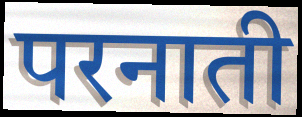
परनाती